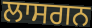
ਲਾਸਗਨ